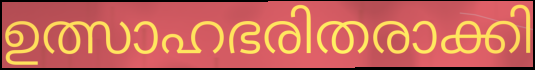
ഉത്സാഹഭരിതരാക്കി